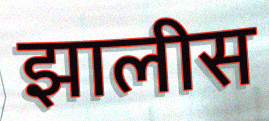
झालीस